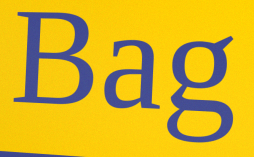
Bag